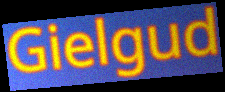
Gielgud